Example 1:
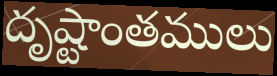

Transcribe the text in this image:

దృష్టాంతములు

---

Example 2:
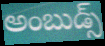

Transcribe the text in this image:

అంబుడ్స్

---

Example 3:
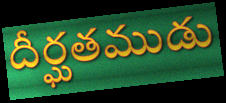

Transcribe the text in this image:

దీర్ఘతముడు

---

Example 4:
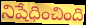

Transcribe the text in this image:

నిషేధించింది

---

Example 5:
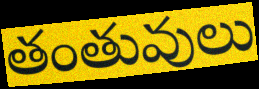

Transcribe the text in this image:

తంతువులు